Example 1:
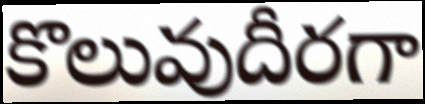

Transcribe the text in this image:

కొలువుదీరగా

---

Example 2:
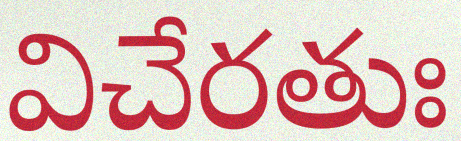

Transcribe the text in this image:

విచేరతుః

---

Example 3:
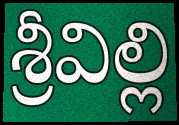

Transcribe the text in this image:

శ్రీవిల్లి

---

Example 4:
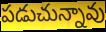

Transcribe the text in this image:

పడుచున్నావు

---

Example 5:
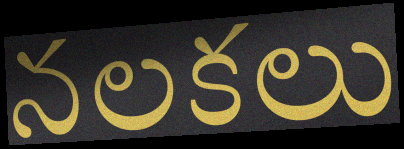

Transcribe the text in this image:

నలకలు